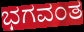
ಭಗವಂತ